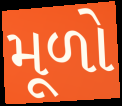
મૂળો